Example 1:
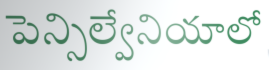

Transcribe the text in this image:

పెన్సిల్వేనియాలో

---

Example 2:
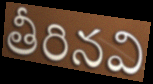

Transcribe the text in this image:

తీరినవి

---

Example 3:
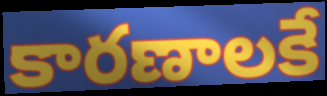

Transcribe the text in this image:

కారణాలకే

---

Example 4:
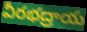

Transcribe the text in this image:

వీరభద్రాయ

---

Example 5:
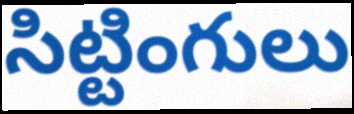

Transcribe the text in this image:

సిట్టింగులు